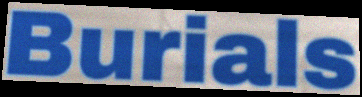
Burials